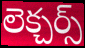
లెక్చర్స్